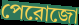
পেরোজো